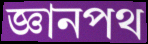
জ্ঞানপথ